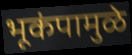
भूकंपामुळे